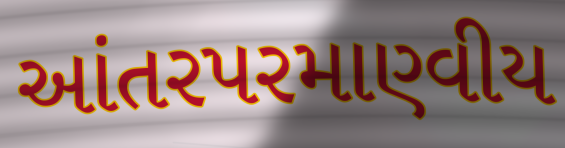
આંતરપરમાણ્વીય